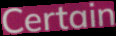
Certain